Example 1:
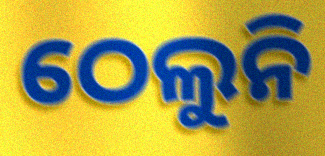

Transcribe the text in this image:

ଠେଲୁନି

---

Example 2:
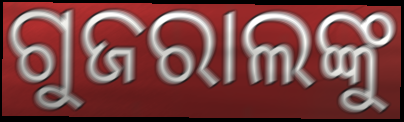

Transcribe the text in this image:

ଗୁଜରାଲଙ୍କୁ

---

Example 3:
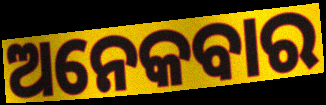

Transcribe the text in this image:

ଅନେକବାର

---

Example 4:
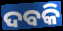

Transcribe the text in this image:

ଦବକି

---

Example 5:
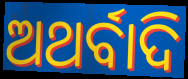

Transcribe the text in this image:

ଅଥର୍ବାଦି